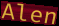
Alen